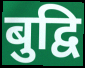
बुद्वि